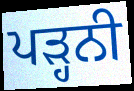
ਪੜ੍ਹਨੀ